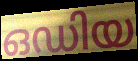
ഒഡിയ